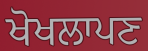
ਖੋਖਲਾਪਣ